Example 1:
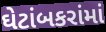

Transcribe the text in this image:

ઘેટાંબકરાંમાં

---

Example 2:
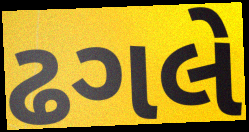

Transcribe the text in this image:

ઢગલે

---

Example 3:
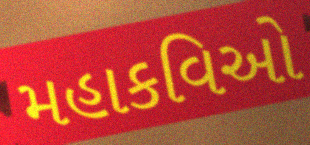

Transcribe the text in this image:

મહાકવિઓ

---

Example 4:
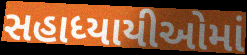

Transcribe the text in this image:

સહાધ્યાયીઓમાં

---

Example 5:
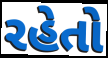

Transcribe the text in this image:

રહેતો